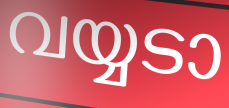
വയ്യടാ